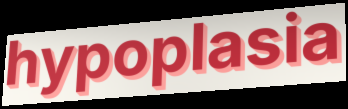
hypoplasia